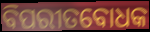
ବିପରୀତବୋଧକ